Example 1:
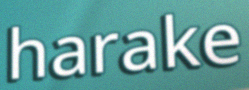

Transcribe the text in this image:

harake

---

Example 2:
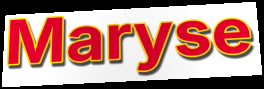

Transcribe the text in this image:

Maryse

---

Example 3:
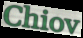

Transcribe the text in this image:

Chiov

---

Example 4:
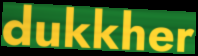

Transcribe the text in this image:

dukkher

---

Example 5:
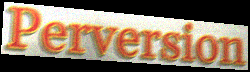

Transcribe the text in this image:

Perversion